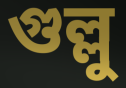
গুল্লু